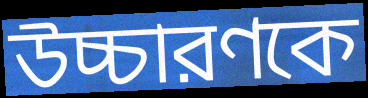
উচ্চারণকে